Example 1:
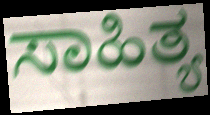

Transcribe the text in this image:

ಸಾಹಿತ್ಯ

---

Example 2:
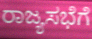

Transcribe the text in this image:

ರಾಜ್ಯಸಭೆಗೆ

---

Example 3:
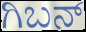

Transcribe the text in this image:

ಗಿಬನ್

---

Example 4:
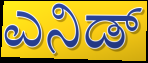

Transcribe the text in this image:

ಎನಿಡ್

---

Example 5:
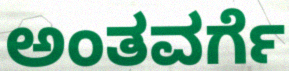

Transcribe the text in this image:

ಅಂತವರ್ಗೆ